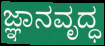
ಜ್ಞಾನವೃದ್ಧ